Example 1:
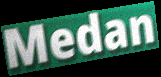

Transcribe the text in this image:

Medan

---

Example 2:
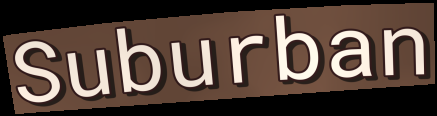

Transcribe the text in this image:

Suburban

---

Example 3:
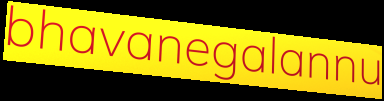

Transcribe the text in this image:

bhavanegalannu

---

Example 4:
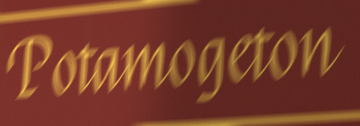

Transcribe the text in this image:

Potamogeton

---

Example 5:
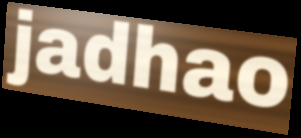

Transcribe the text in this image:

jadhao